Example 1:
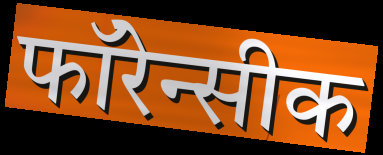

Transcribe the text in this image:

फॉरेन्सीक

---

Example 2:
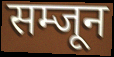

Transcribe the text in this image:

सम्जून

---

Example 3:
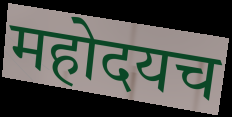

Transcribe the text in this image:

महोदयच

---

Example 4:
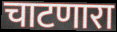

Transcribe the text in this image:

चाटणारा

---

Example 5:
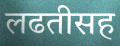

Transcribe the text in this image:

लढतीसह